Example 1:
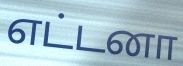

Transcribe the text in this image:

எட்டனா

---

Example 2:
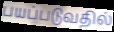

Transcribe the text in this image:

பயப்படுவதில்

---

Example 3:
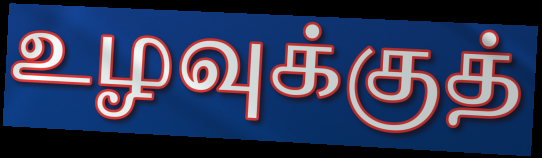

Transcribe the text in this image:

உழவுக்குத்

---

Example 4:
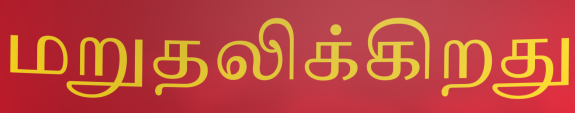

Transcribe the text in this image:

மறுதலிக்கிறது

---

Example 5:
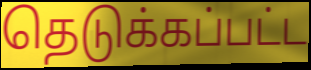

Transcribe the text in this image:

தெடுக்கப்பட்ட